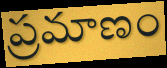
ప్రమాణం